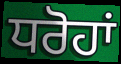
ਧਰੋਹਾਂ